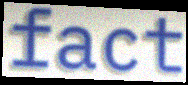
fact